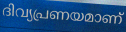
ദിവ്യപ്രണയമാണ്